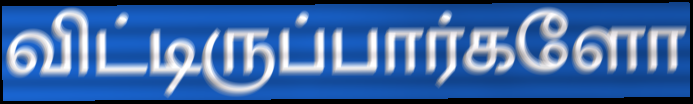
விட்டிருப்பார்களோ